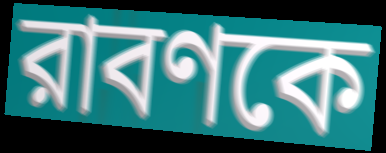
রাবণকে